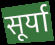
सूर्या